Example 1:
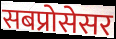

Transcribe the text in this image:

सबप्रोसेसर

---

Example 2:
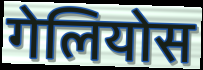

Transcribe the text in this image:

गेलियोस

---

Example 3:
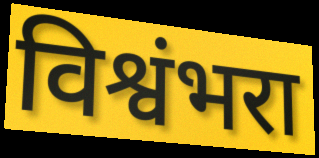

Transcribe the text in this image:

विश्वंभरा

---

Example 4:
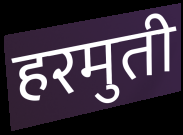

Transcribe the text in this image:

हरमुती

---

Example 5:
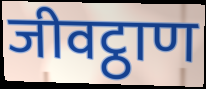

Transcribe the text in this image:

जीवट्ठाण